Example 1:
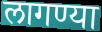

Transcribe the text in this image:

लागण्या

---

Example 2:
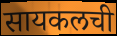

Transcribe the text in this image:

सायकलची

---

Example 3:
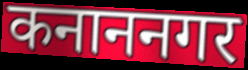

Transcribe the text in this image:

कनाननगर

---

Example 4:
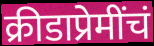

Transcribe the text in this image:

क्रीडाप्रेमींचं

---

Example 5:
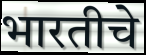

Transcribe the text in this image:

भारतीचे